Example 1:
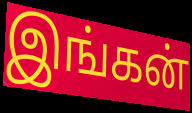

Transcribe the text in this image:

இங்கன்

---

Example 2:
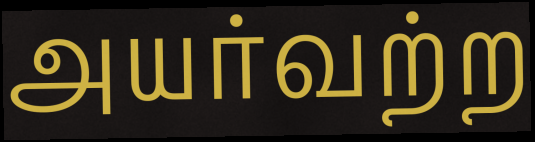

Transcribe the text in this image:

அயர்வற்ற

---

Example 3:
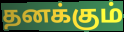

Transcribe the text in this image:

தனக்கும்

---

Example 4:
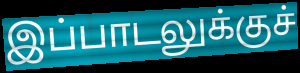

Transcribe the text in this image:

இப்பாடலுக்குச்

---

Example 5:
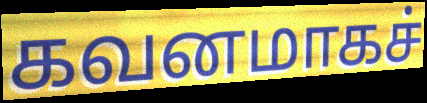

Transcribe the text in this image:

கவனமாகச்